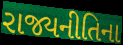
રાજ્યનીતિના